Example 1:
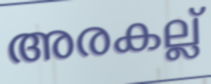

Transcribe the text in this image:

അരകല്ല്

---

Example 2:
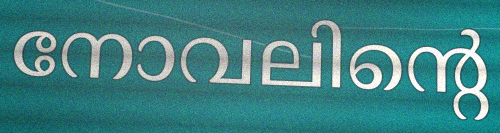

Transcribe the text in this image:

നോവലിന്റെ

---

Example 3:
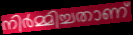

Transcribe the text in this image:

നിർമ്മിച്ചതാണ്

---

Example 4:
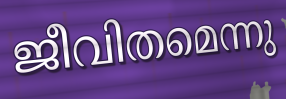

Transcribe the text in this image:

ജീവിതമെന്നു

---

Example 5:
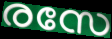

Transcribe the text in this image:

രസേ